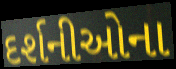
દર્શનીઓના